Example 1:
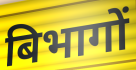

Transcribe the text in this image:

बिभागों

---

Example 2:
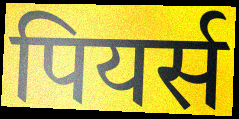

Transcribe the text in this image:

पियर्स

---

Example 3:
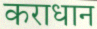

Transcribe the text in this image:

कराधान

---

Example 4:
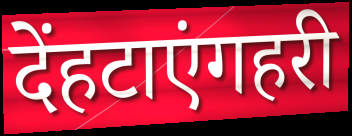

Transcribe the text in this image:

देंहटाएंगहरी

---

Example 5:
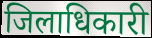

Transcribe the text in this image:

जिलाधिकारी